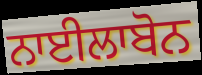
ਨਾਈਲਾਬੋਨ